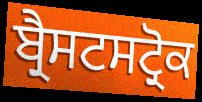
ਬ੍ਰੈਸਟਸਟ੍ਰੋਕ